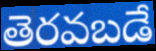
తెరవబడే